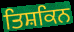
ਤਿਸ਼ਕਿਨ